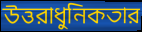
উত্তরাধুনিকতার